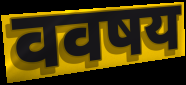
ववषय